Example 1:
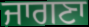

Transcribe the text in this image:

ਜਾਗਣਾ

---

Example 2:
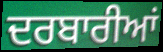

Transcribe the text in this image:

ਦਰਬਾਰੀਆਂ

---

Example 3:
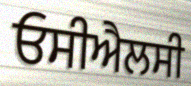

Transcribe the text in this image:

ਓਸੀਐਲਸੀ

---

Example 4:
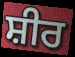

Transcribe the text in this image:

ਸ਼ੀਰ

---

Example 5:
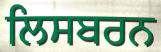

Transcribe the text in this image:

ਲਿਸਬਰਨ